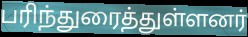
பரிந்துரைத்துள்ளனர்